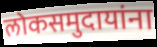
लोकसमुदायांना